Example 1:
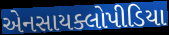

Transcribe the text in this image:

એનસાયક્લોપીડિયા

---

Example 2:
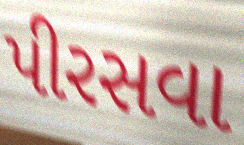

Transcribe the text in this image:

પીરસવા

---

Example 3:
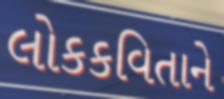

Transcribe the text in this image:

લોકકવિતાને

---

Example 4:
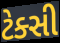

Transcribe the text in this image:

ટેક્સી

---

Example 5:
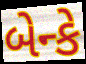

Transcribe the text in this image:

બેન્કે